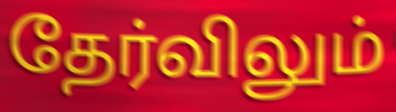
தேர்விலும்